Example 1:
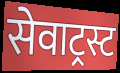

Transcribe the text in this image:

सेवाट्रस्ट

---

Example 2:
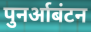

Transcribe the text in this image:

पुनर्आबंटन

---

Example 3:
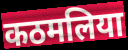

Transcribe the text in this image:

कठमलिया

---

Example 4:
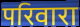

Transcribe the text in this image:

परिवारा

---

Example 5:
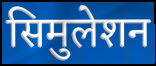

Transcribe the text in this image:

सिमुलेशन